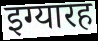
इग्यारह